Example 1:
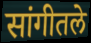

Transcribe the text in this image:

सांगीतले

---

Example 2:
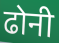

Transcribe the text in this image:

ढोनी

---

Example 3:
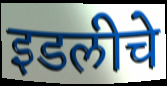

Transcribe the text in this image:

इडलीचे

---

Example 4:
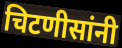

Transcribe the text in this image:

चिटणीसांनी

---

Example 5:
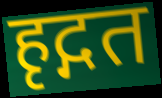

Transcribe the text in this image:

हृद्गत